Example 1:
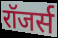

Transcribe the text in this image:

रॉजर्स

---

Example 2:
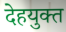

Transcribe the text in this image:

देहयुक्त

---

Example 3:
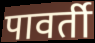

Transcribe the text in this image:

पावर्ती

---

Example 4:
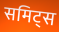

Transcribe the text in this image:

समिट्स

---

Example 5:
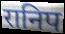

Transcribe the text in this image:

रानिप